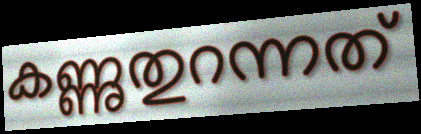
കണ്ണുതുറന്നത്